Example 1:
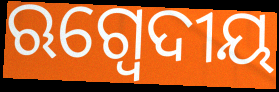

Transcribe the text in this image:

ଋଗ୍ବେଦୀୟ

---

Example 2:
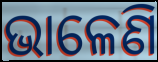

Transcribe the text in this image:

ଭାଳେଣି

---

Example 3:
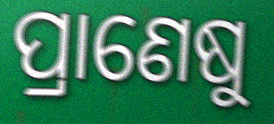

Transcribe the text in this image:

ପ୍ରାଣେଷୁ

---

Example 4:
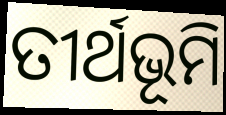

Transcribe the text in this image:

ତୀର୍ଥଭୂମି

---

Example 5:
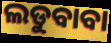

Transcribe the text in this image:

ଲଡୁବାବା